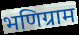
भणिग्राम